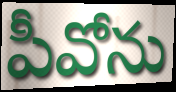
పీవోను